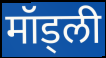
मॉड्ली